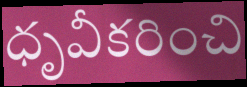
ధృవీకరించి